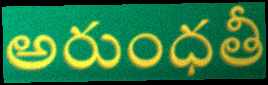
అరుంధతీ